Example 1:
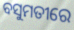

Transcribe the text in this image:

ବସୁମତୀରେ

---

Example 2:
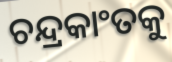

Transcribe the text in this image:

ଚନ୍ଦ୍ରକାଂତକୁ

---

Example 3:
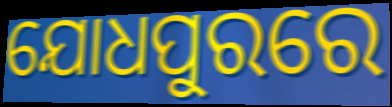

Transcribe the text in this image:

ଯୋଧପୁରରେ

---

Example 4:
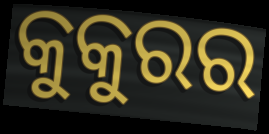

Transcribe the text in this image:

କୁକୁରର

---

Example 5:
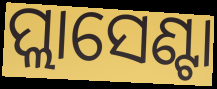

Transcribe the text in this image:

ପ୍ଲାସେଣ୍ଟା